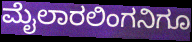
ಮೈಲಾರಲಿಂಗನಿಗೂ